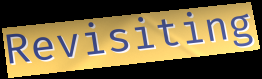
Revisiting